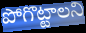
పోగొట్టాలని